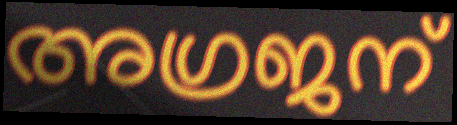
അഗ്രജന്